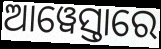
ଆୱେସ୍ତାରେ